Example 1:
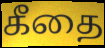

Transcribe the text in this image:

கீதை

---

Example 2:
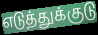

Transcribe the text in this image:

எடுத்துக்குடு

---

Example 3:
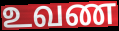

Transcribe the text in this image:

உவண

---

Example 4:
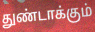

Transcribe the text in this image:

துண்டாக்கும்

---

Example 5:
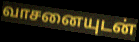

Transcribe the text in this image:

வாசனையுடன்